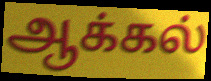
ஆக்கல்